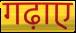
गढ़ाए